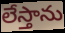
లేస్తాను